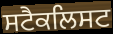
ਸਟੈਕਲਿਸਟ